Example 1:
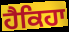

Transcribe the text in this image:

ਹੈਕਿਹਾ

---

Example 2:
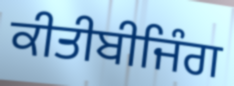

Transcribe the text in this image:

ਕੀਤੀਬੀਜਿੰਗ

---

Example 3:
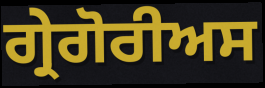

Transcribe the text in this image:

ਗ੍ਰੇਗੋਰੀਅਸ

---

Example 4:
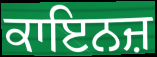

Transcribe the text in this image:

ਕਾਇਨਜ਼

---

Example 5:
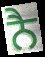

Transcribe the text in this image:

ਨੈ